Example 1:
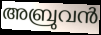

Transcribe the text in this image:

അബ്രുവൻ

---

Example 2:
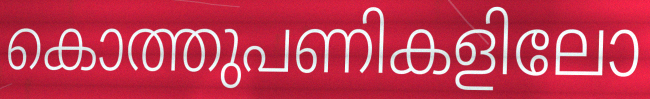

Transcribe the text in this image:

കൊത്തുപണികളിലോ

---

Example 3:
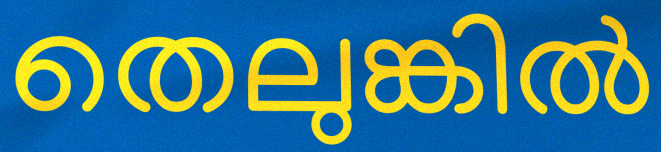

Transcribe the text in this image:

തെലുങ്കിൽ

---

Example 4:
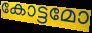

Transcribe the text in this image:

കോട്ടമോ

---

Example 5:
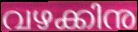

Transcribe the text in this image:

വഴക്കിനു